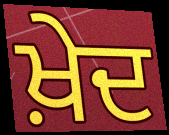
ਖ਼ੇਦ